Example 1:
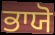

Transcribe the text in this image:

ਭਾਯੋ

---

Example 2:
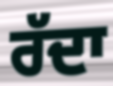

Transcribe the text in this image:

ਰੱਦਾ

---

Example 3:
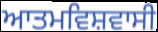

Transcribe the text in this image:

ਆਤਮਵਿਸ਼ਵਾਸੀ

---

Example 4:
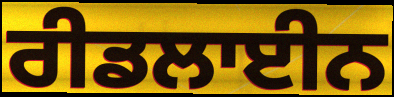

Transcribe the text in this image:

ਰੀਡਲਾਈਨ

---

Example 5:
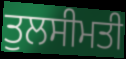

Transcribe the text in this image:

ਤੁਲਸੀਮਤੀ